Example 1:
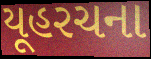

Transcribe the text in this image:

યૂહરચના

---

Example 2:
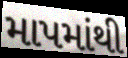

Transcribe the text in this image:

માપમાંથી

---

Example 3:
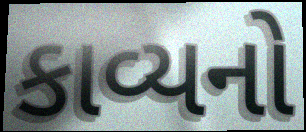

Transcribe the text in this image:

કાવ્યનો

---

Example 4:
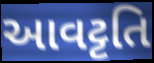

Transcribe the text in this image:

આવટ્ટતિ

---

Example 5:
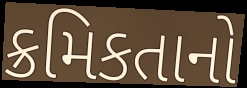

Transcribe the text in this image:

ક્રમિકતાનો